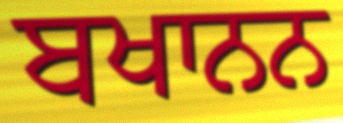
ਬਖਾਨਨ